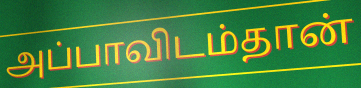
அப்பாவிடம்தான்